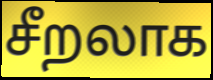
சீறலாக